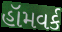
હૉમવર્ક